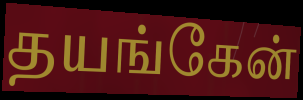
தயங்கேன்